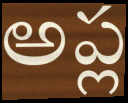
అప్ల